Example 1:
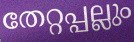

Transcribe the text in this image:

തേറ്റപ്പല്ലും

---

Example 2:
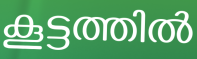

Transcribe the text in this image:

കൂട്ടത്തിൽ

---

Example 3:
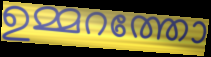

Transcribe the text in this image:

ഉമ്മറത്തോ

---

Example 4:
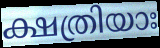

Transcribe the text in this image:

ക്ഷത്രിയാഃ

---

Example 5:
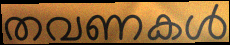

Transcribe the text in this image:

തവണകൾ